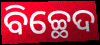
ବିଚ୍ଛେଦ